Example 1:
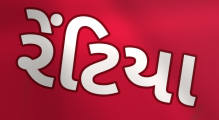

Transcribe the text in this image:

રેંટિયા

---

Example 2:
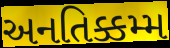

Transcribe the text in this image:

અનતિક્કમ્મ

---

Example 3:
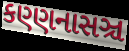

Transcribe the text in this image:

કણ્ણનાસઞ્ચ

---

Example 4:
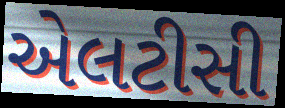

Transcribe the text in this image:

એલટીસી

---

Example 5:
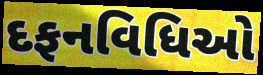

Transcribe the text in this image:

દફનવિધિઓ